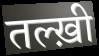
तल्ख़ी